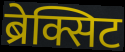
ब्रेक्सिट